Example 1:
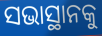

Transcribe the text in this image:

ସଭାସ୍ଥାନକୁ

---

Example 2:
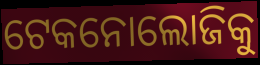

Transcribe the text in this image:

ଟେକନୋଲୋଜିକୁ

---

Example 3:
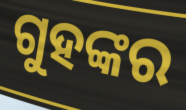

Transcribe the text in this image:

ଗୁହଙ୍କର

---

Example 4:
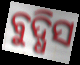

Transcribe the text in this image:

ବୁଦ୍ଧିସ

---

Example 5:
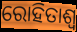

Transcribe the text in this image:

ରୋହିତାଶ୍ୱ